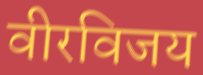
वीरविजय